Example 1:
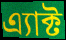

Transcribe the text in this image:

এ্যাক্ট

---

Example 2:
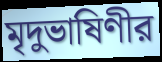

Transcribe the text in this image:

মৃদুভাষিণীর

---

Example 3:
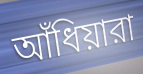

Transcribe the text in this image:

আঁধিয়ারা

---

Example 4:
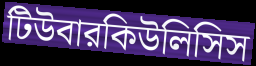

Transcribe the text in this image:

টিউবারকিউলিসিস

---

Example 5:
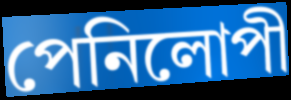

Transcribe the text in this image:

পেনিলোপী